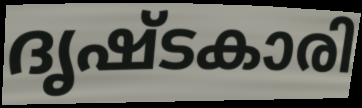
ദൃഷ്ടകാരി